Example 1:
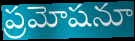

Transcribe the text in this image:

ప్రమోషనూ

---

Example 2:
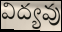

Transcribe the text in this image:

విద్యవు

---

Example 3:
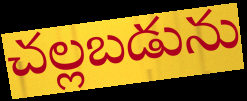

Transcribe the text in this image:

చల్లబడును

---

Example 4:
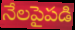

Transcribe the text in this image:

నేలపైపడి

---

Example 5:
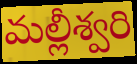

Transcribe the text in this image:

మల్లీశ్వరి